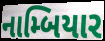
નામ્બિયાર